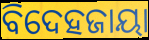
ବିଦେହଜାୟା